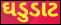
ઘડુડાટ